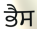
ਭੈਸ